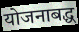
योजनाबद्ध